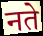
नते